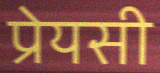
प्रेयसी